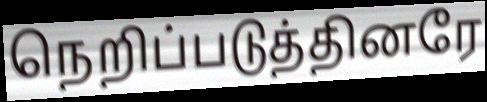
நெறிப்படுத்தினரே